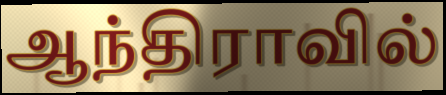
ஆந்திராவில்